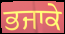
ਭਜਾਕੇ